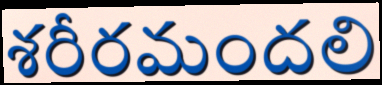
శరీరమందలి